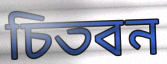
চিতবন